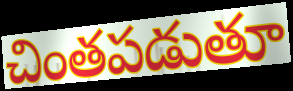
చింతపడుతూ